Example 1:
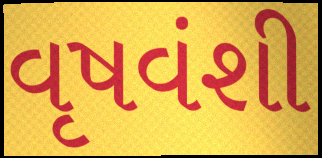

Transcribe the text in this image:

વૃષવંશી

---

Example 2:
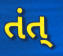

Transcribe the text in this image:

તંત્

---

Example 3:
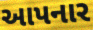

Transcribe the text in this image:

આપનાર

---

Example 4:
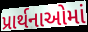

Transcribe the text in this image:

પ્રાર્થનાઓમાં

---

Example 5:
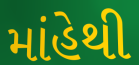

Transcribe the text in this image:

માંહેથી